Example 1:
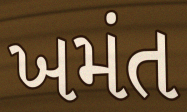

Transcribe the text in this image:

ખમંત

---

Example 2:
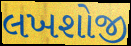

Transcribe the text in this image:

લખશોજી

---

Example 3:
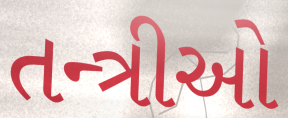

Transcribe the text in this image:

તન્ત્રીઓ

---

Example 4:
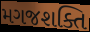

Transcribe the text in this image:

મગજશક્તિ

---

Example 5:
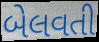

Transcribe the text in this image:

બેલવતી